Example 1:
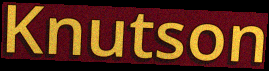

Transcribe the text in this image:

Knutson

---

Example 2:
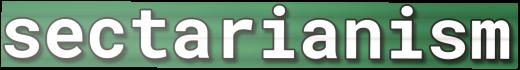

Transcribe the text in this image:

sectarianism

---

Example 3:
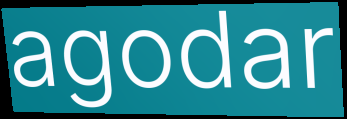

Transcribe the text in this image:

agodar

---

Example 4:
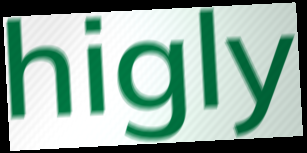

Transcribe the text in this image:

higly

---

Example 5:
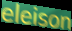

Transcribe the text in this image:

eleison